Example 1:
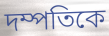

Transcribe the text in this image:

দম্পতিকে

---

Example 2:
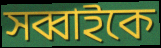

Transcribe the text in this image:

সব্বাইকে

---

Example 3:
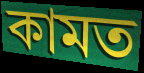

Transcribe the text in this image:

কামত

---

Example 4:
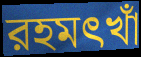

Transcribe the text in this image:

রহমৎখাঁ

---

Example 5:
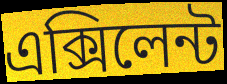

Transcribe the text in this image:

এক্সিলেন্ট